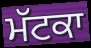
ਮੱਟਕਾ